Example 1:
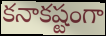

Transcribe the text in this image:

కనాకష్టంగా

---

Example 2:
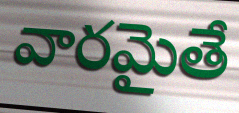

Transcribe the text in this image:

వారమైతే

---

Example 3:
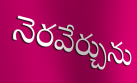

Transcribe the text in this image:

నెరవేర్చును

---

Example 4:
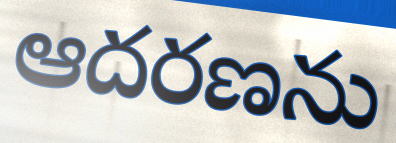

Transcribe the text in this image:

ఆదరణను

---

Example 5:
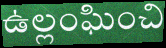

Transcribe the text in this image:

ఉల్లంఘించి